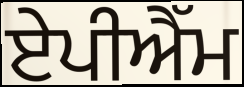
ਏਪੀਐੱਮ